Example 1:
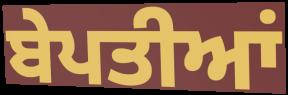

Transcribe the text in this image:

ਬੇਪਤੀਆਂ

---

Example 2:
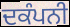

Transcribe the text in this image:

ਦਕੰਪਨੀ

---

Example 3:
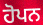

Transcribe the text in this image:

ਹੋਪਨ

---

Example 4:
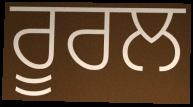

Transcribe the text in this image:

ਰੂਰਲ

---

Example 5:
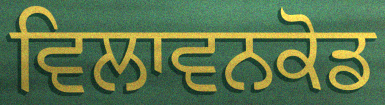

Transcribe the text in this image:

ਵਿਲਾਵਨਕੋਡ